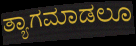
ತ್ಯಾಗಮಾಡಲೂ